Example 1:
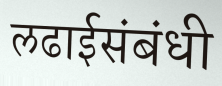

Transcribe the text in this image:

लढाईसंबंधी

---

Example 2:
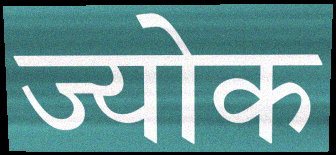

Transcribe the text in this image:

ज्योक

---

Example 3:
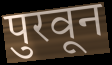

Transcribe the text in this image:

पुरवून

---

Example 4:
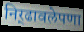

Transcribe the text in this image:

निर्ढावलेपणा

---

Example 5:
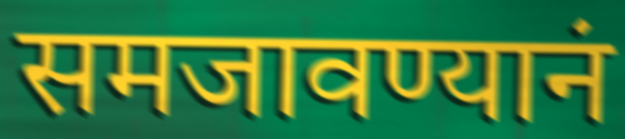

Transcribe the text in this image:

समजावण्यानं